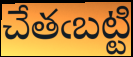
చేతఁబట్టి